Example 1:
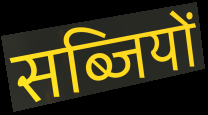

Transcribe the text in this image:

सब्जियों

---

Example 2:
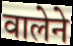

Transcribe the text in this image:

वालेने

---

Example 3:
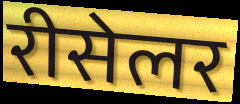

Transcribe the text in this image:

रीसेलर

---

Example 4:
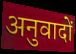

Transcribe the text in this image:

अनुवादों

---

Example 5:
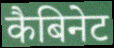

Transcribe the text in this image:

कैबिनेट